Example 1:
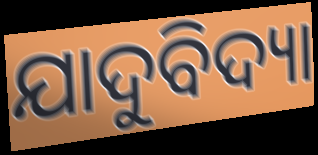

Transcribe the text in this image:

ଯାଦୁବିଦ୍ୟା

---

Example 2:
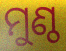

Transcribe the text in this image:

ମୁଣ୍ଠ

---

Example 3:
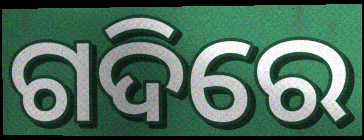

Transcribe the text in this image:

ଗଦିରେ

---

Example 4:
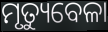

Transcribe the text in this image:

ମୃତ୍ୟୁବେଳା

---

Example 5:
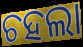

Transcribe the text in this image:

ଚହଲା